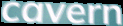
cavern